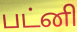
பட்னி